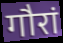
गौरां